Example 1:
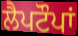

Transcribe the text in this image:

ਲੈਪਟੌਪਾਂ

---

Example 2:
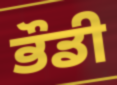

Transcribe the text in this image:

ਭੌਡੀ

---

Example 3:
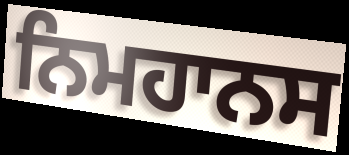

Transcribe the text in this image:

ਨਿਮਹਾਨਸ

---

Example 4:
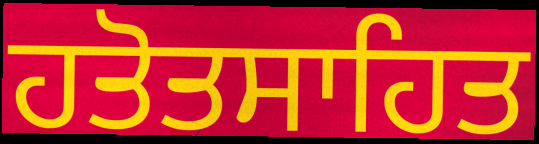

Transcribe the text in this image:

ਹਤੋਤਸਾਹਿਤ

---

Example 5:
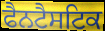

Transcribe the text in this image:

ਫੈਨਟੈਸਟਿਕ